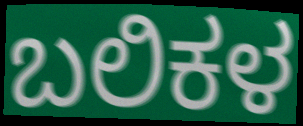
ಬಲಿಕಳ